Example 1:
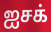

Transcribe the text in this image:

ஐசக்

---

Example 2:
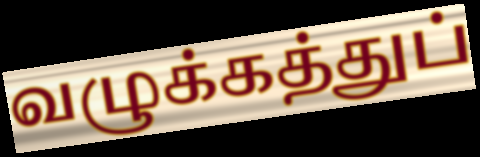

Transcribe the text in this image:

வழுக்கத்துப்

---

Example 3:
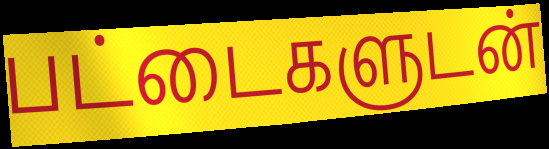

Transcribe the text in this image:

பட்டைகளுடன்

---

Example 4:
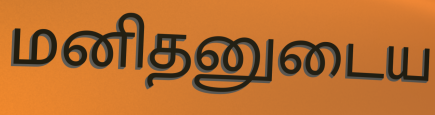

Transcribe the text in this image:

மனிதனுடைய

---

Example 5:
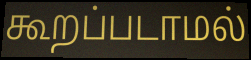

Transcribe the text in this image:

கூறப்படாமல்